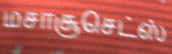
மசாசூசெட்ஸ்